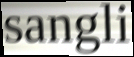
sangli